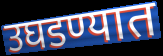
उघडण्यात